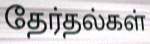
தேர்தல்கள்